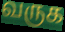
வருக